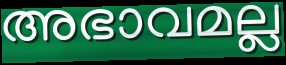
അഭാവമല്ല